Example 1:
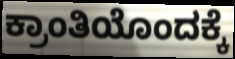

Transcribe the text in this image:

ಕ್ರಾಂತಿಯೊಂದಕ್ಕೆ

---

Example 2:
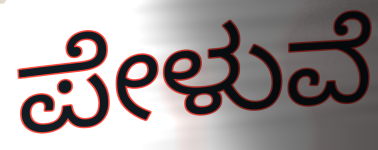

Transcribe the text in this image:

ಪೇಳುವೆ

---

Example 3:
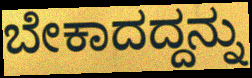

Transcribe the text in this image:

ಬೇಕಾದದ್ದನ್ನು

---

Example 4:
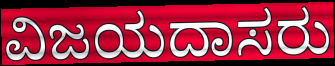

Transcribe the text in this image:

ವಿಜಯದಾಸರು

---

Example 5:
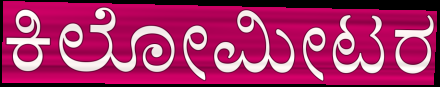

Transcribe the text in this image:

ಕಿಲೋಮೀಟರ